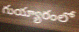
గుయ్యారంలో